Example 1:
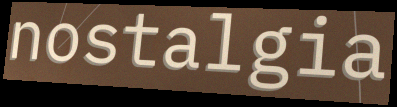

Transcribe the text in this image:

nostalgia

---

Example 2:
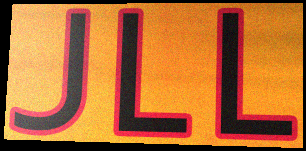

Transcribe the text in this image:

JLL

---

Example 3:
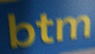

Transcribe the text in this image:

btm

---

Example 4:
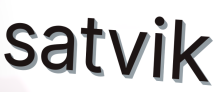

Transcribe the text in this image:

satvik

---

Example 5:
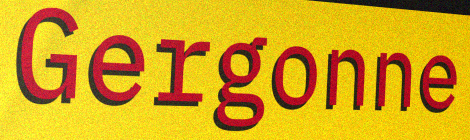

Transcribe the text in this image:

Gergonne